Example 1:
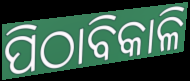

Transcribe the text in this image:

ପିଠାବିକାଳି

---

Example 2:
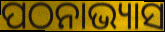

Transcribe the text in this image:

ପଠନାଭ୍ୟାସ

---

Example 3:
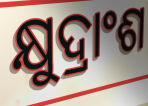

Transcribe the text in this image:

କ୍ଷୁଦ୍ରାଂଶ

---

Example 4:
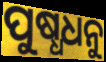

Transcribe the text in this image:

ପୁଷ୍ଧଧନୁ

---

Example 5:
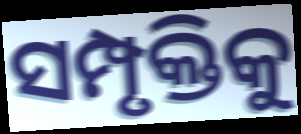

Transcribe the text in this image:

ସମ୍ପୃକ୍ତିକୁ